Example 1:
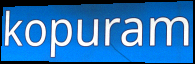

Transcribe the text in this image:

kopuram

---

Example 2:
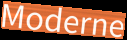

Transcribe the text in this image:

Moderne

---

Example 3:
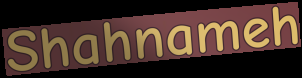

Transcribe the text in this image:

Shahnameh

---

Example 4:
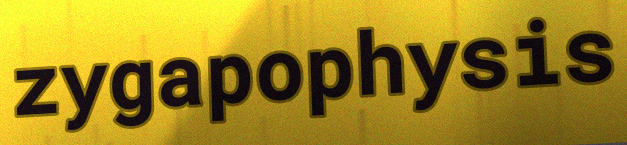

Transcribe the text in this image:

zygapophysis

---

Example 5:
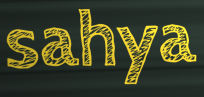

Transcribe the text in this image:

sahya